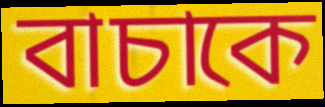
বাচাকে